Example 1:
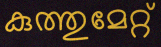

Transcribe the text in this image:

കുത്തുമേറ്റ്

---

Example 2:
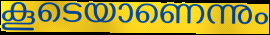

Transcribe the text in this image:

കൂടെയാണെന്നും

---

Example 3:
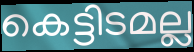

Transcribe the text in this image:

കെട്ടിടമല്ല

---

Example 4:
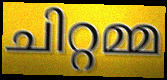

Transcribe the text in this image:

ചിറ്റമ്മ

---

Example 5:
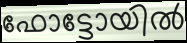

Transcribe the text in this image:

ഫോട്ടോയിൽ